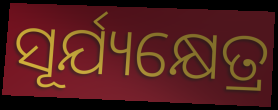
ସୂର୍ଯ୍ୟକ୍ଷେତ୍ର